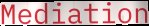
Mediation